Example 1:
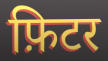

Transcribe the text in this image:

फ़िटर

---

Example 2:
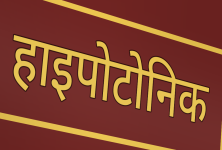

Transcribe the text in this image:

हाइपोटोनिक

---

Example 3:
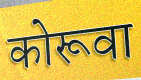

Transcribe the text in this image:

कोरूवा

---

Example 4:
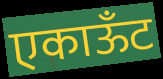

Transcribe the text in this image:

एकाऊँट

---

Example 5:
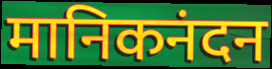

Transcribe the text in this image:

मानिकनंदन